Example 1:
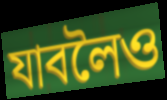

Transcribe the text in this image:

যাবলৈও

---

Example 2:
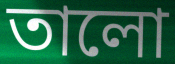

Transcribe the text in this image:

তালো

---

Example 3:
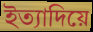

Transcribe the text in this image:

ইত্যাদিয়ে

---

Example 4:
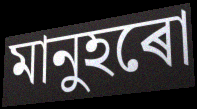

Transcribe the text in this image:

মানুহৰো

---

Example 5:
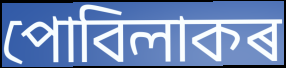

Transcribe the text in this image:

পোবিলাকৰ